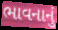
ભાવનાનું